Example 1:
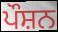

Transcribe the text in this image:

ਪੌਸ਼ਨ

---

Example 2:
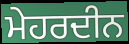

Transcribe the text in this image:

ਮੇਹਰਦੀਨ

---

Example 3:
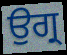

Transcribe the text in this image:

ਉਗ੍ਰ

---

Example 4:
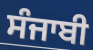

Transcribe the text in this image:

ਸੰਜਾਬੀ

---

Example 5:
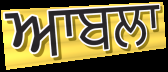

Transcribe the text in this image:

ਆਬਲਾ